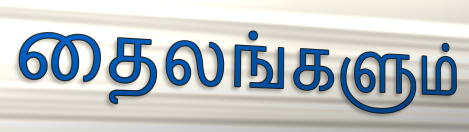
தைலங்களும்